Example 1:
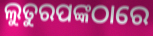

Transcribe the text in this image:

ଲୁତୁରପଙ୍କଠାରେ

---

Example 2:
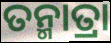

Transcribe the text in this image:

ତନ୍ମାତ୍ରା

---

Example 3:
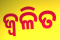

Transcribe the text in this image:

ଜ୍ୱଳିତ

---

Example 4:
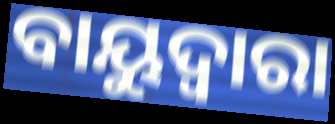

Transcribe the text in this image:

ବାୟୁଦ୍ୱାରା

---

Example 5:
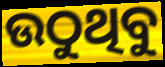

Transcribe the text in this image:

ଉଠୁଥିବୁ